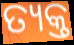
ତ୍ୟକ୍ତ